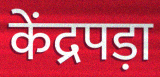
केंद्रपड़ा